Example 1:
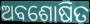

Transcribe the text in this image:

ଅବଶୋଷିତ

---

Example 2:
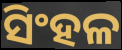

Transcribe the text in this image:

ସିଂହଳ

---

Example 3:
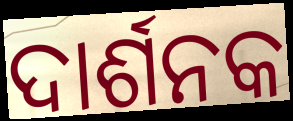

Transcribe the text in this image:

ଦାର୍ଶନକ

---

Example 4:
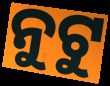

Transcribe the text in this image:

ନୁଟୁ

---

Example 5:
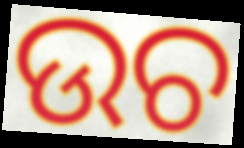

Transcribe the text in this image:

ଉଚ